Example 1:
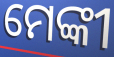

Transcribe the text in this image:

ମେଙ୍କୀ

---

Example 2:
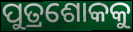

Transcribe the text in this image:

ପୁତ୍ରଶୋକକୁ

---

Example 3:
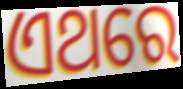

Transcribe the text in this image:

ଏଥରେ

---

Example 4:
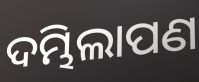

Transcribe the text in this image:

ଦମ୍ଭିଲାପଣ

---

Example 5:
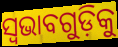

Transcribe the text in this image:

ସ୍ୱଭାବଗୁଡ଼ିକୁ